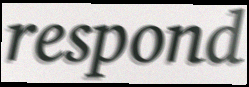
respond